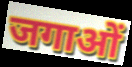
जगाओं